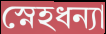
স্নেহধন্যা